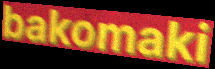
bakomaki